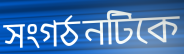
সংগঠনটিকে